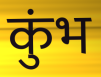
कुंभ